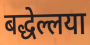
बद्धेल्लया